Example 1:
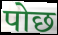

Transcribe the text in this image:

पोछ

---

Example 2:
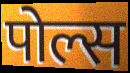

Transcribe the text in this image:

पोल्‍स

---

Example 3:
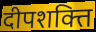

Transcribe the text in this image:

दीपशक्ति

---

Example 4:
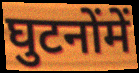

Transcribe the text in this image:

घुटनोंमें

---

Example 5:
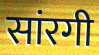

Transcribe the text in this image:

सांरगी